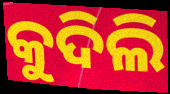
କୁଦିଲି